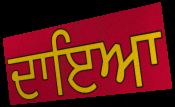
ਦਾਇਆ